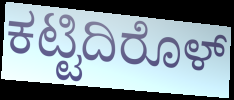
ಕಟ್ಟಿದಿರೊಳ್